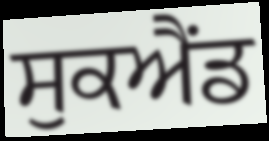
ਸੁਕਐਂਡ